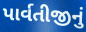
પાર્વતીજીનું